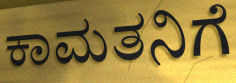
ಕಾಮತನಿಗೆ